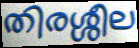
തിരശ്ശീല